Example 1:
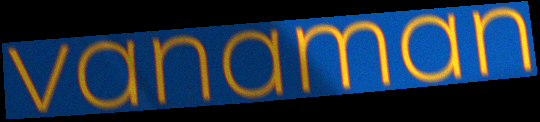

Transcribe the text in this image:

vanaman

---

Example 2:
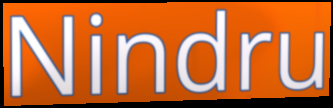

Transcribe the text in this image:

Nindru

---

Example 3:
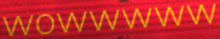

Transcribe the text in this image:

wowwwww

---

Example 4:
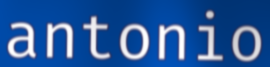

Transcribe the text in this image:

antonio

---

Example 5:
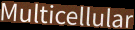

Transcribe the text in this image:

Multicellular